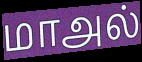
மாஅல்